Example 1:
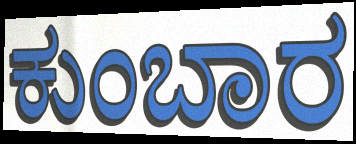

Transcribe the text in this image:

ಕುಂಬಾರ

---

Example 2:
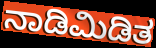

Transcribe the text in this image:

ನಾಡಿಮಿಡಿತ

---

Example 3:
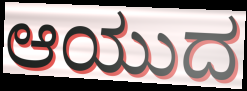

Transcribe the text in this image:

ಆಯುದ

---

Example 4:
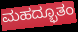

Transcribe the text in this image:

ಮಹದ್ಭೂತಂ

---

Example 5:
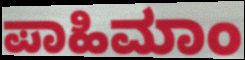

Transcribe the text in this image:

ಪಾಹಿಮಾಂ